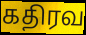
கதிரவ